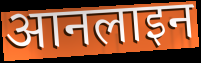
आनलाइन